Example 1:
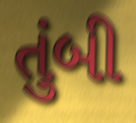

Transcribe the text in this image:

તુંબી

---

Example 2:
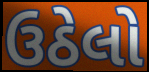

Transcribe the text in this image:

ઉઠેલો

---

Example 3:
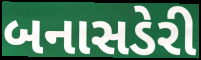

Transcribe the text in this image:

બનાસડેરી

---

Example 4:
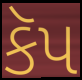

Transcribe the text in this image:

કૅપ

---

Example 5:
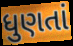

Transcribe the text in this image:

ધુણતાં